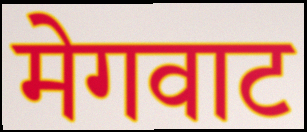
मेगवाट